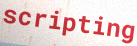
scripting